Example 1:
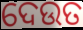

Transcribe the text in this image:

ଦେଉତ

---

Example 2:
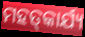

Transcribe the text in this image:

ମହତ୍‌କାର୍ଯ୍ୟ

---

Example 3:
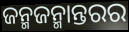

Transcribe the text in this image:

ଜନ୍ମଜନ୍ମାନ୍ତରର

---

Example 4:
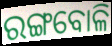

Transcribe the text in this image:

ରଙ୍ଗବୋଳି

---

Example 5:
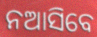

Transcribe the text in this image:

ନଆସିବେ